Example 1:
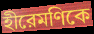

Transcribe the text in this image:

হীরেমণিকে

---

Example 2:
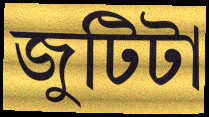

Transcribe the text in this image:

জুটিটা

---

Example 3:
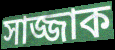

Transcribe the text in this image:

সাজ্জাক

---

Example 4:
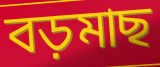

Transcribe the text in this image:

বড়মাছ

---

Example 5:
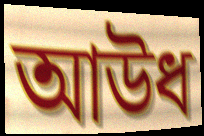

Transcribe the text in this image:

আউধ